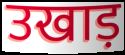
उखाड़